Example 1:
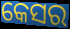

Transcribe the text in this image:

କେସର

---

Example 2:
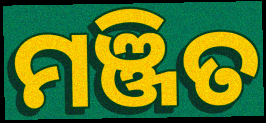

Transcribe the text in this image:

ମଞ୍ଜିତ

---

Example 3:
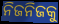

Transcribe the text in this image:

ନିଜନିଜକୁ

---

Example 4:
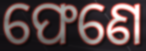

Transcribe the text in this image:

ଫେଣେ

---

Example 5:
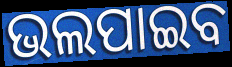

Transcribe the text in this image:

ଭଲପାଇବ